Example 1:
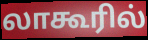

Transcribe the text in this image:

லாகூரில்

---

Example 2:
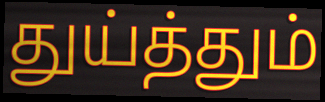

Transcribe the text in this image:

துய்த்தும்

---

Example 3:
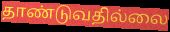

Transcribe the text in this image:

தாண்டுவதில்லை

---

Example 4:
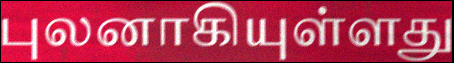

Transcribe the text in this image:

புலனாகியுள்ளது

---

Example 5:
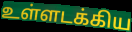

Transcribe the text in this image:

உள்ளடக்கிய